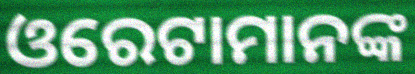
ଓରେଟାମାନଙ୍କ